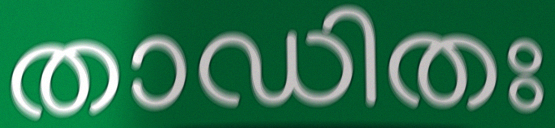
താഡിതഃ